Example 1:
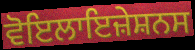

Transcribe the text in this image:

ਵੋਇਲਾਇਜ਼ੇਸ਼ਨਸ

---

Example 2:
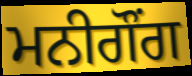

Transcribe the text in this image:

ਮਨੀਗੌਂਗ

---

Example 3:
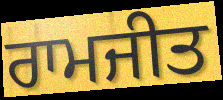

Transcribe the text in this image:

ਰਾਮਜੀਤ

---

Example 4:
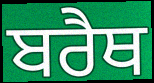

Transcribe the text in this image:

ਬਰੈਥ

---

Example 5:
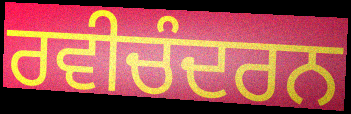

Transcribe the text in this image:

ਰਵੀਚੰਦਰਨ